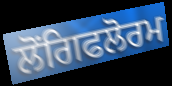
ਲੋਂਗਿਫਲੋਰਮ